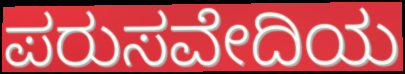
ಪರುಸವೇದಿಯ